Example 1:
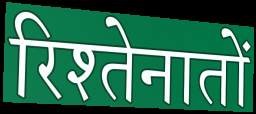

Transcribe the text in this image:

रिश्तेनातों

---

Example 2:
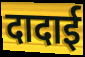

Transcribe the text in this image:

दादाई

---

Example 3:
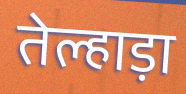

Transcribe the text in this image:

तेल्हाड़ा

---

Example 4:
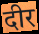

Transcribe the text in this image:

दीर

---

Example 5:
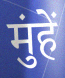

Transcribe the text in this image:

मुंहें